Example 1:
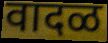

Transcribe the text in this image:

वादळ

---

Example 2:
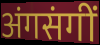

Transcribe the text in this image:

अंगसंगीं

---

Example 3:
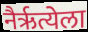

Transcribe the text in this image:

नैर्ऋत्येला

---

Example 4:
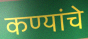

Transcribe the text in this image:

कण्यांचे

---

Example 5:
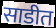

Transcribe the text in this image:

साडीत